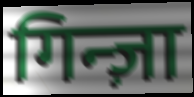
गिन्ज़ा